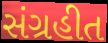
સંગ્રહીત